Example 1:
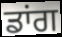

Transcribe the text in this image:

ਡਾਂਗ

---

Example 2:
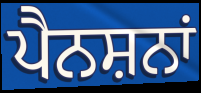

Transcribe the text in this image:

ਪੈਨਸ਼ਨਾਂ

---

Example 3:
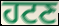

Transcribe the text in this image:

ਹਟਣ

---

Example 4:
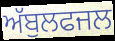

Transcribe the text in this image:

ਅੱਬੁਲਫਜਲ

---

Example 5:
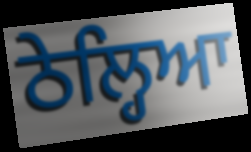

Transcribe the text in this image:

ਠੇਲ੍ਹਿਆ